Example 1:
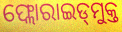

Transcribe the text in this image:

ଫ୍ଲୋରାଇଡ୍‌ମୁକ୍ତ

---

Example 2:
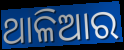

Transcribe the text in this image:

ଥାଳିଆର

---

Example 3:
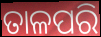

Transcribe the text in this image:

ତାଳପରି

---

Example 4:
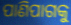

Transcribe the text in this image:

ପାଣିପାଗକୁ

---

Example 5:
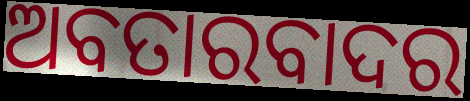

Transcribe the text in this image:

ଅବତାରବାଦର